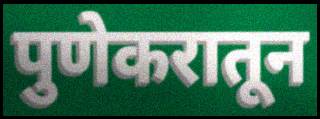
पुणेकरातून